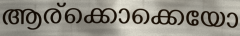
ആര്ക്കൊക്കെയോ